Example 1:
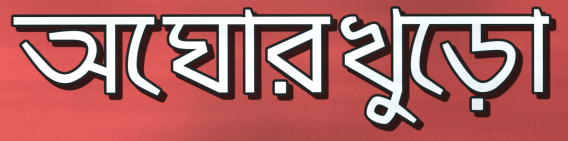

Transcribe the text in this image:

অঘোরখুড়ো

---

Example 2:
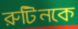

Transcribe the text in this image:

রুটিনকে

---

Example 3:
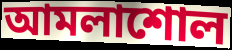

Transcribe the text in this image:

আমলাশোল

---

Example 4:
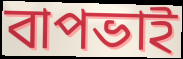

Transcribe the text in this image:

বাপভাই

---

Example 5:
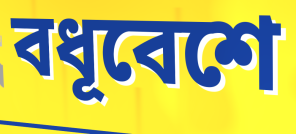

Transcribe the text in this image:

বধূবেশে